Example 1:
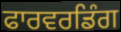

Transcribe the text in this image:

ਫਾਰਵਰਡਿੰਗ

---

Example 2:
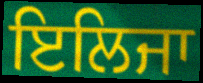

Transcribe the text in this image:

ਇਲਿਜਾ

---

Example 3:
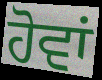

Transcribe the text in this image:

ਹੋਵਾਂ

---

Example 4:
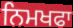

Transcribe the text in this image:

ਨਿਮਖਫਾ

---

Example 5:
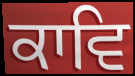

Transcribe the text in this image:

ਕਾਵਿ